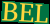
BEL